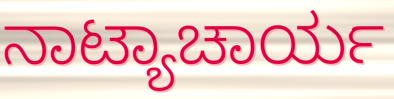
ನಾಟ್ಯಾಚಾರ್ಯ